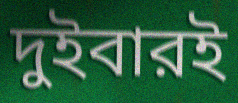
দুইবারই